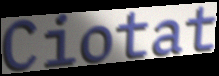
Ciotat